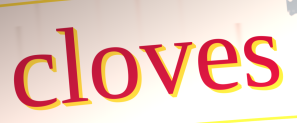
cloves